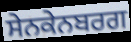
ਸੇਨਕੇਨਬਰਗ